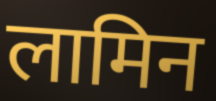
लामिन